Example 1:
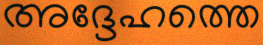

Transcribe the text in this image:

അദ്ദേഹത്തെ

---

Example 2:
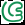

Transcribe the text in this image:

ഭൂ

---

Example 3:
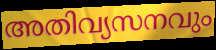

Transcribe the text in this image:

അതിവ്യസനവും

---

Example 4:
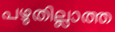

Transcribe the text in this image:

പഴുതില്ലാത്ത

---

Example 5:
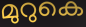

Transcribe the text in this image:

മുറുകെ